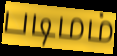
படிமம்